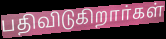
பதிவிடுகிறார்கள்